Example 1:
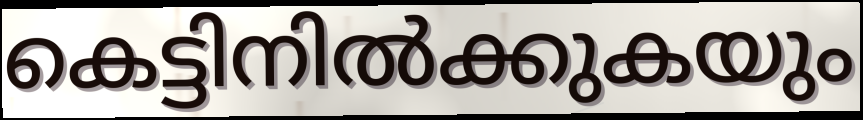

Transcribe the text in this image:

കെട്ടിനിൽക്കുകയും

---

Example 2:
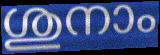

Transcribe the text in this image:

ശുനാം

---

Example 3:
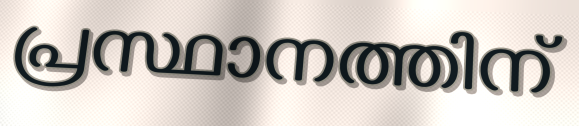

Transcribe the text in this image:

പ്രസ്ഥാനത്തിന്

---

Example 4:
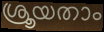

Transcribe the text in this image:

ശ്രൂയതാം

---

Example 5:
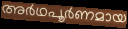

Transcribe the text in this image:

അർഥപൂർണമായ